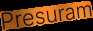
Presuram